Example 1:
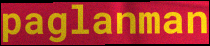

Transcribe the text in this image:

paglanman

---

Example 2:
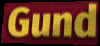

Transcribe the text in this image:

Gund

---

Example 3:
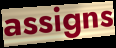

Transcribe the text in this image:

assigns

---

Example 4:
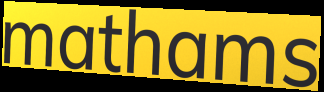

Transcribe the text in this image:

mathams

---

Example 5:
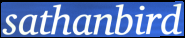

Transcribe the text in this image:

sathanbird